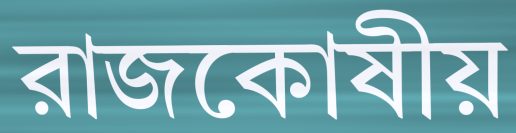
রাজকোষীয়